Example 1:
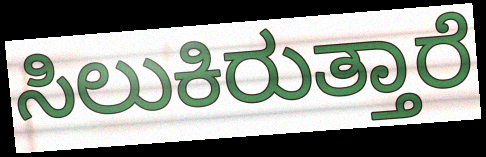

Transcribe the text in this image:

ಸಿಲುಕಿರುತ್ತಾರೆ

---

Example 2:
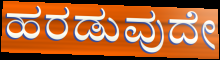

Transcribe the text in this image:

ಹರಡುವುದೇ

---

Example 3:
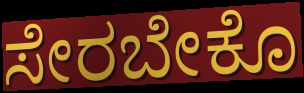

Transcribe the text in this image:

ಸೇರಬೇಕೊ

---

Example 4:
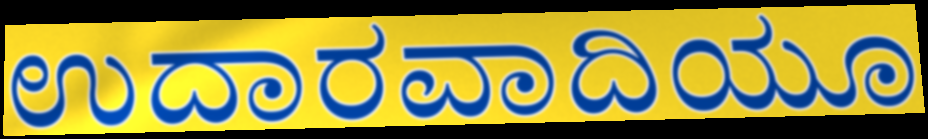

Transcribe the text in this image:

ಉದಾರವಾದಿಯೂ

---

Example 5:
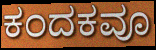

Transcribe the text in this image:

ಕಂದಕವೂ